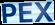
PEX